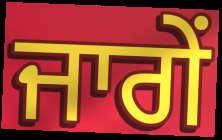
ਜਾਗੇਂ